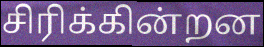
சிரிக்கின்றன